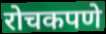
रोचकपणे